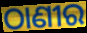
ଠାଣୀର